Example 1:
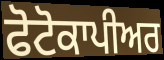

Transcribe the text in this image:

ਫੋਟੋਕਾਪੀਅਰ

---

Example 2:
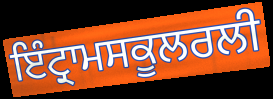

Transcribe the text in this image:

ਇੰਟ੍ਰਾਮਸਕੂਲਰਲੀ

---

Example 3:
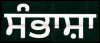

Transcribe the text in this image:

ਸੰਭਾਸ਼ਾ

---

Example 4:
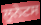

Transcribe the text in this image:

ਲੂਨੇਟਸ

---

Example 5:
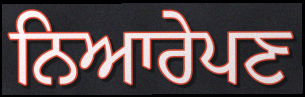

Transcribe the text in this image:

ਨਿਆਰੇਪਣ